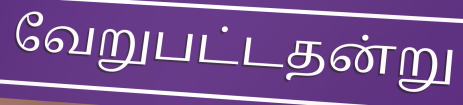
வேறுபட்டதன்று